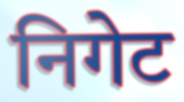
निगेट